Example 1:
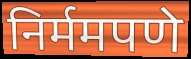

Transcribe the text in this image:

निर्ममपणे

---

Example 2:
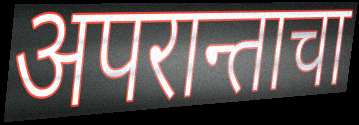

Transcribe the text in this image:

अपरान्ताचा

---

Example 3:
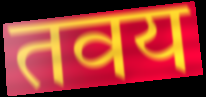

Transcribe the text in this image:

तवय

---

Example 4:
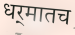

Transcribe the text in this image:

धर्मातच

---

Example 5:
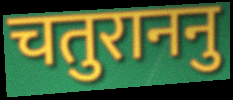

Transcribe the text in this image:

चतुराननु